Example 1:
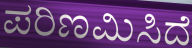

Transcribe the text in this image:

ಪರಿಣಮಿಸಿದೆ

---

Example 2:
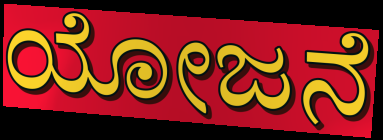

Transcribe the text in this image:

ಯೋಜನೆ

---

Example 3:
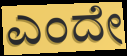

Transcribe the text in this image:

ಎಂದೇ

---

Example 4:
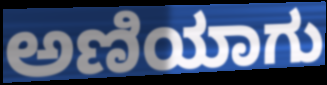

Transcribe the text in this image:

ಅಣಿಯಾಗು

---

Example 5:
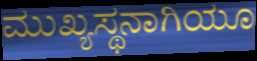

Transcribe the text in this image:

ಮುಖ್ಯಸ್ಥನಾಗಿಯೂ